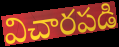
విచారపడి